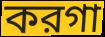
করগা